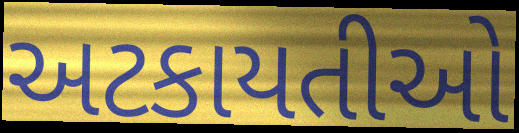
અટકાયતીઓ